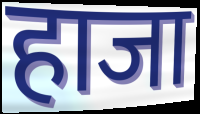
हाजा